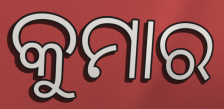
କୁମାର